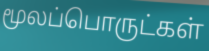
மூலப்பொருட்கள்